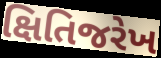
ક્ષિતિજરેખ